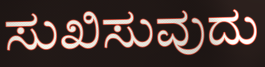
ಸುಖಿಸುವುದು